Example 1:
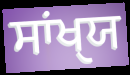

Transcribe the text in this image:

ਸਾਂਖੑਯ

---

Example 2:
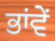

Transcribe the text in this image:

ਭਾਂਵੇਂ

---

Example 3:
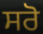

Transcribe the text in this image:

ਸਰੋ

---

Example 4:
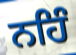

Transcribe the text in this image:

ਨਹਿੰ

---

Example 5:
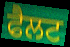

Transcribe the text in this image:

ਫੈਲਟ